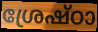
ശ്രേഷ്ഠാ